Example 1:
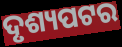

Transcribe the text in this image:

ଦୃଶ୍ୟପଟର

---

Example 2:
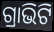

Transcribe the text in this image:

ଗ୍ରାଭିଟି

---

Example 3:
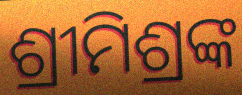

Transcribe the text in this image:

ଶ୍ରୀମିଶ୍ରଙ୍କ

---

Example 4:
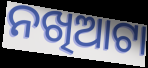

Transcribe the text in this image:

ନଖିଆଟା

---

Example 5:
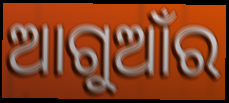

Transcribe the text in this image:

ଆଗୁଆଁର